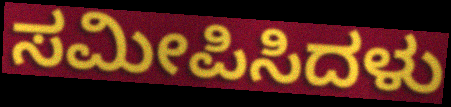
ಸಮೀಪಿಸಿದಳು